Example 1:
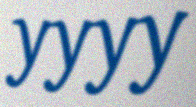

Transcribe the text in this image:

yyyy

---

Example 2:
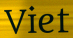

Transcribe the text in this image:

Viet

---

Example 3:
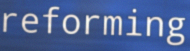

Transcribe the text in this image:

reforming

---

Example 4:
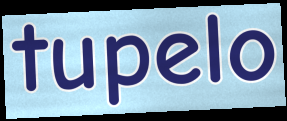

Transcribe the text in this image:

tupelo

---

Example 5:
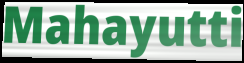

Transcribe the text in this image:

Mahayutti